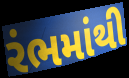
રંભમાંથી